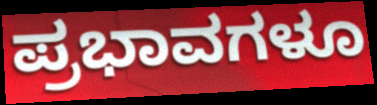
ಪ್ರಭಾವಗಳೂ